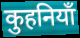
कुहनियाँ